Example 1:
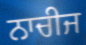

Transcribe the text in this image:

ਨਾਚੀਜ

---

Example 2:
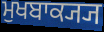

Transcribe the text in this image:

ਮੁਖਬਾਕ੍ਯ੍ਯ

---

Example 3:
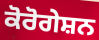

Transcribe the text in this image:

ਕੋਰੋਗੇਸ਼ਨ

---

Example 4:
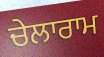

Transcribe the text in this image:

ਚੇਲਾਰਾਮ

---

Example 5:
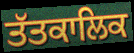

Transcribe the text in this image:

ਤੱਤਕਾਲਿਕ